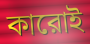
কারোই